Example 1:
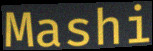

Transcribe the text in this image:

Mashi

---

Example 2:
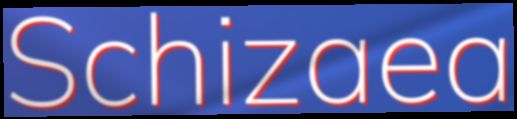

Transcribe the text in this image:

Schizaea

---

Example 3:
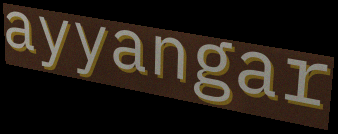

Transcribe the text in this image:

ayyangar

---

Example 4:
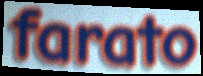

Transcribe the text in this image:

farato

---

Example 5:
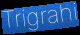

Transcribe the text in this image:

Trigrahi